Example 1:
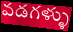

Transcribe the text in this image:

వడగళ్ళు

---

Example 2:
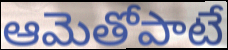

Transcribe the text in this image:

ఆమెతోపాటే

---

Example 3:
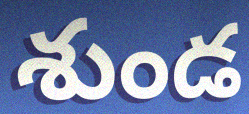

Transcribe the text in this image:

శుండ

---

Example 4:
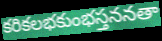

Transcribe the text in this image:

కరికలభకుంభస్తననతా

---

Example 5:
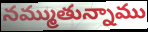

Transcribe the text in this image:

నమ్ముతున్నాము